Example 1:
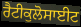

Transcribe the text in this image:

ਰੈਟੀਕੁਲੋਸਾਈਟ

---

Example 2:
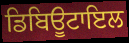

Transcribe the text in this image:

ਡਿਬਿਊਟਾਇਲ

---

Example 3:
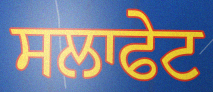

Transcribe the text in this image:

ਸਲਾਫੇਟ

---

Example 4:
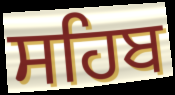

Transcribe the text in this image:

ਸਹਿਬ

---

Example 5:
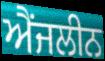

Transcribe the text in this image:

ਐਂਜਲੀਨ